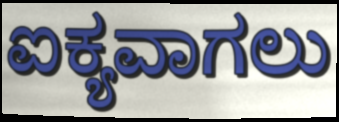
ಐಕ್ಯವಾಗಲು